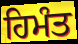
ਹਿਮੰਤ